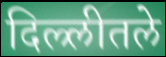
दिल्लीतले